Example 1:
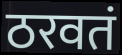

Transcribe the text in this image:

ठरवतं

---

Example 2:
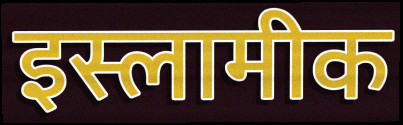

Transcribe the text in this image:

इस्लामीक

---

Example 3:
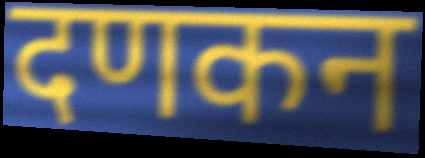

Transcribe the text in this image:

दणकन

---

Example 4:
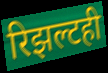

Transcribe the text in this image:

रिझल्टही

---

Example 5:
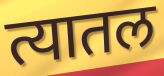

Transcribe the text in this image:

त्यातल